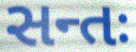
સન્તઃ